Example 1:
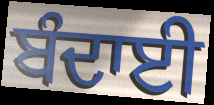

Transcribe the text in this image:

ਬੰਦਾਈ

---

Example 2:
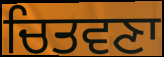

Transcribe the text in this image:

ਚਿਤਵਣਾ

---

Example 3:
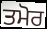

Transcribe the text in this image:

ਤਮੋਰ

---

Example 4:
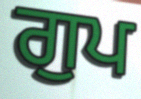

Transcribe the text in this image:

ਗੁਪ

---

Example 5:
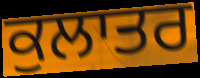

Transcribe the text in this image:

ਕੁਲਾਤਰ